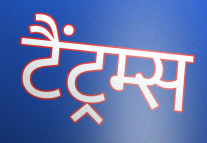
टैंट्रम्स